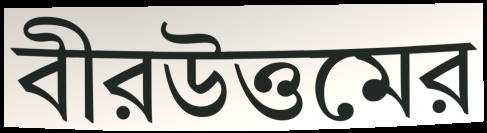
বীরউত্তমের